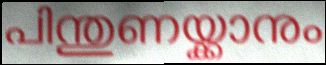
പിന്തുണയ്ക്കാനും